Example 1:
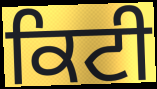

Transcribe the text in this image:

ਕਿਟੀ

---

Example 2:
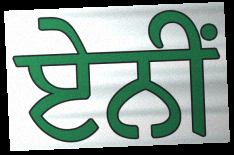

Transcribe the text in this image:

ਏਨੀਂ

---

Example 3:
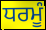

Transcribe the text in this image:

ਧਰਮੂੰ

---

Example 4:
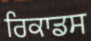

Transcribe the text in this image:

ਰਿਕਾਡਸ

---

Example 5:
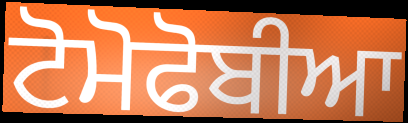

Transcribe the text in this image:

ਟੋਮੋਫੋਬੀਆ